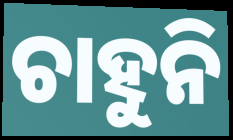
ଚାହୁନି